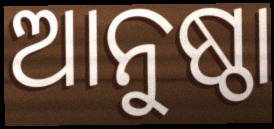
ଆନୁଷ୍ଠା